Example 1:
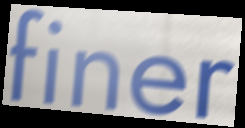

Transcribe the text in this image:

finer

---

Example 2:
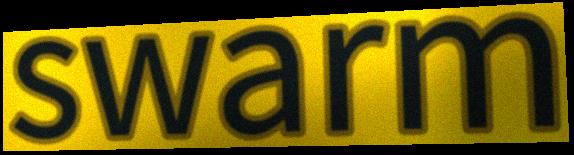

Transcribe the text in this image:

swarm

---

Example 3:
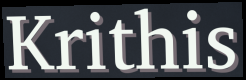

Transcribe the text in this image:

Krithis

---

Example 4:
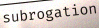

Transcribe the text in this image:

subrogation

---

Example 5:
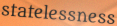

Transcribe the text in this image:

statelessness